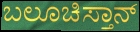
ಬಲೂಚಿಸ್ತಾನ್